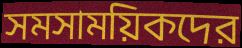
সমসাময়িকদের